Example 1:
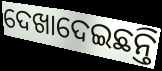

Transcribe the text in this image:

ଦେଖାଦେଇଛନ୍ତି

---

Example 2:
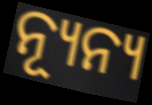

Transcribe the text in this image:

ନ୍ୟୂନ୍ୟ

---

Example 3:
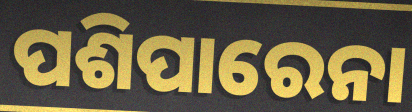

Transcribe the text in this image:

ପଶିପାରେନା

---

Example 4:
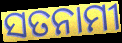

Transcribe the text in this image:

ସତନାମୀ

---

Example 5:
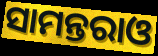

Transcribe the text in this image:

ସାମନ୍ତରାଓ